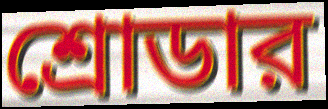
শ্রোডার